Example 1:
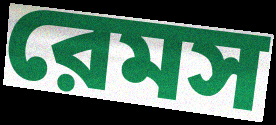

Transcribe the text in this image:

রেমস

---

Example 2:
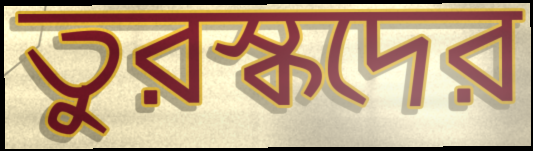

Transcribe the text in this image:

তুরস্কদের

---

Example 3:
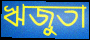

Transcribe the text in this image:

ঋজুতা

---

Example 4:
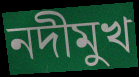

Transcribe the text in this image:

নদীমুখ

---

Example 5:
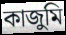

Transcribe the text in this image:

কাজুমি